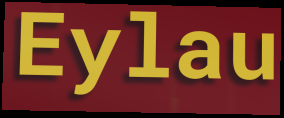
Eylau